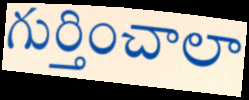
గుర్తించాలా